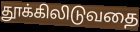
தூக்கிலிடுவதை